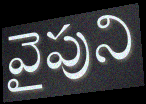
వైపుని